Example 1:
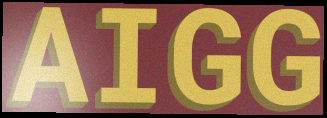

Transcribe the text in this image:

AIGG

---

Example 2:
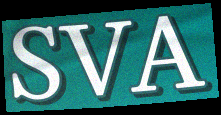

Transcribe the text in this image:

SVA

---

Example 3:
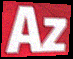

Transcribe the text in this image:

Az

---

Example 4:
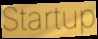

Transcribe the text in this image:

Startup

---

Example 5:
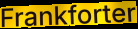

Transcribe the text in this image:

Frankforter